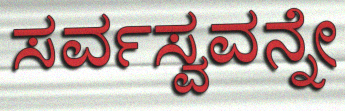
ಸರ್ವಸ್ವವನ್ನೇ